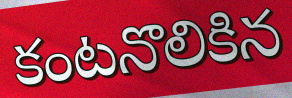
కంటనొలికిన